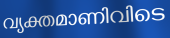
വ്യക്തമാണിവിടെ